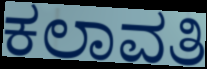
ಕಲಾವತಿ